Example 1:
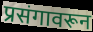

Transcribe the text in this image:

प्रसंगावरून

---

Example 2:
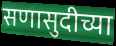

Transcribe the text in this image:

सणासुदीच्या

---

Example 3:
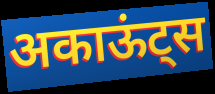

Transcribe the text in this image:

अकाऊंट्स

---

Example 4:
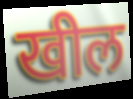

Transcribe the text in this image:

खील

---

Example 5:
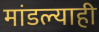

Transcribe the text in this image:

मांडल्याही